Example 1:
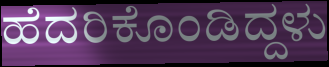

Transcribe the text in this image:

ಹೆದರಿಕೊಂಡಿದ್ದಳು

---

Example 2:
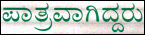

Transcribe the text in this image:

ಪಾತ್ರವಾಗಿದ್ದರು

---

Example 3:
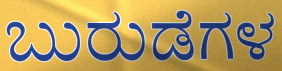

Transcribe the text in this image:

ಬುರುಡೆಗಳ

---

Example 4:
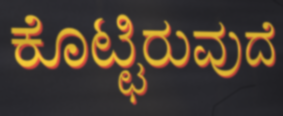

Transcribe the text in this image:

ಕೊಟ್ಟಿರುವುದೆ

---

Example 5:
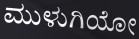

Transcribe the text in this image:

ಮುಳುಗಿಯೋ